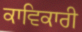
ਕਾਵਿਕਾਰੀ